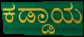
ಕಡ್ಡಾಯ